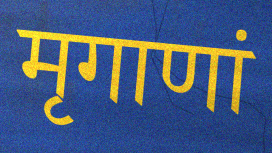
मृगाणां